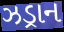
ઝડ્રાન